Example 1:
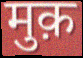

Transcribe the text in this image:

मुक़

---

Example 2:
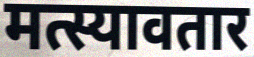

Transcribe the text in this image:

मत्स्यावतार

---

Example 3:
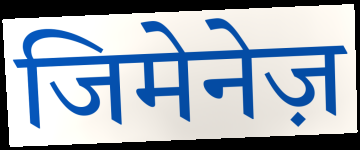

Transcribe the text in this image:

जिमेनेज़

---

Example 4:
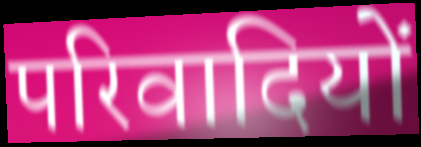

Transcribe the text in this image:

परिवादियों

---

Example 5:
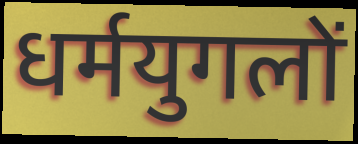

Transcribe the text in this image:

धर्मयुगलों